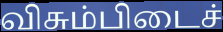
விசும்பிடைச்